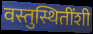
वस्तुस्थितींशी